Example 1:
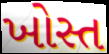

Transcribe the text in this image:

ખોસ્ત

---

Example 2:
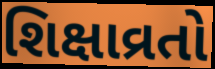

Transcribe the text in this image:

શિક્ષાવ્રતો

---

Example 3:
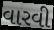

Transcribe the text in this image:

વારવી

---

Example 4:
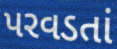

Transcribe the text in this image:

પરવડતાં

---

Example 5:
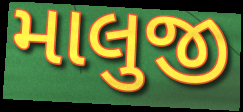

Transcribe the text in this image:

માલુજી